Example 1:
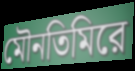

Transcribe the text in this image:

মৌনতিমিরে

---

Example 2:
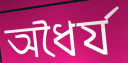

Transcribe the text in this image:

অধৈর্য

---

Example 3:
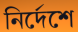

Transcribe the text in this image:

নির্দেশে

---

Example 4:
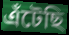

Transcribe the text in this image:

এঁটেছি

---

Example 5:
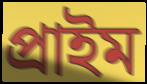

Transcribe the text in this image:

প্রাইম